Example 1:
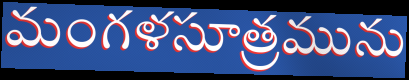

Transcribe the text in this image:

మంగళసూత్రమును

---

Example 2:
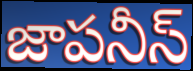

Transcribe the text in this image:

జాపనీస్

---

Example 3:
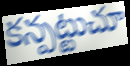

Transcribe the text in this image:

కన్పట్టుచూ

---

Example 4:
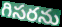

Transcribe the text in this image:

గిసరను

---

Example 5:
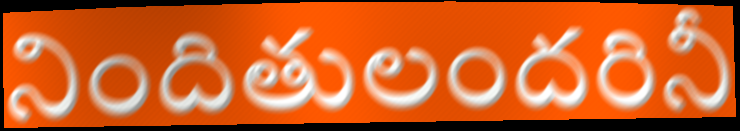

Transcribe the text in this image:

నిందితులందరినీ